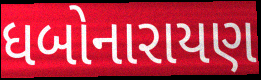
ધબોનારાયણ